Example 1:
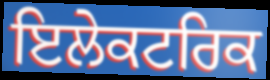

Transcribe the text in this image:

ਇਲੇਕਟਰਿਕ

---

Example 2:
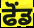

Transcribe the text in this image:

ਫੋਂਡ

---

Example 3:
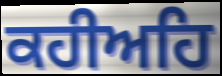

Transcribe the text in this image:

ਕਹੀਅਹਿ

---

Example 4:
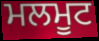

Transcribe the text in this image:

ਮਲਮੂਟ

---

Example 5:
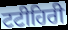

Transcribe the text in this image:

ਟਟੀਹਿਰੀ